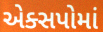
એક્સપોમાં